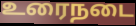
உரைநடை